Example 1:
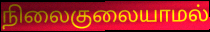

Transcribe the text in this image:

நிலைகுலையாமல்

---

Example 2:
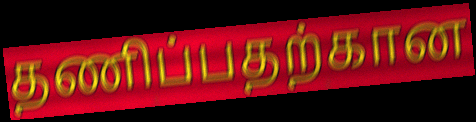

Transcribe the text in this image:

தணிப்பதற்கான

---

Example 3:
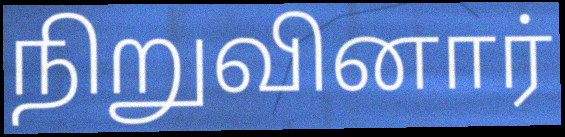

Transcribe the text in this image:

நிறுவினார்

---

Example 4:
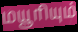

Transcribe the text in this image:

மயூரியும்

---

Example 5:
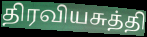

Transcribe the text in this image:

திரவியசுத்தி